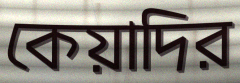
কেয়াদির